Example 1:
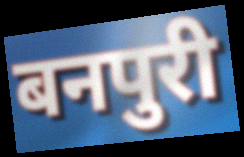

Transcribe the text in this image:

बनपुरी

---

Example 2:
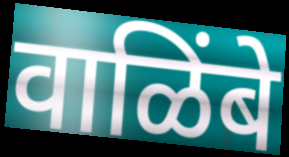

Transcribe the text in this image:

वाळिंबे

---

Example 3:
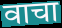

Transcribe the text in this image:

वाचा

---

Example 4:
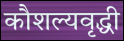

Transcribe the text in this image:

कौशल्यवृद्धी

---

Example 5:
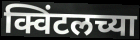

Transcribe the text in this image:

क्विंटलच्या